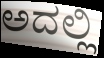
ಅದಲ್ಲಿ